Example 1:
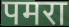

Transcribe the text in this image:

पमरा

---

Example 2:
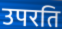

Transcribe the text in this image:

उपरति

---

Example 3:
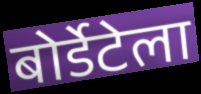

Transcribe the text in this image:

बोर्डेटेला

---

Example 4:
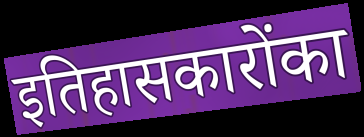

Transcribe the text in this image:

इतिहासकारोंका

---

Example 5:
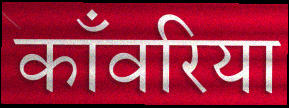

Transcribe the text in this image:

काँवरिया